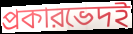
প্রকারভেদই